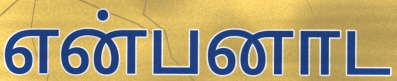
என்பனாட